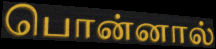
பொன்னால்